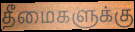
தீமைகளுக்கு